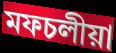
মফচলীয়া